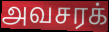
அவசரக்